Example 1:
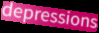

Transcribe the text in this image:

depressions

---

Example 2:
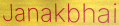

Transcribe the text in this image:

Janakbhai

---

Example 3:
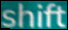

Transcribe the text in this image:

shift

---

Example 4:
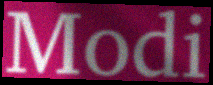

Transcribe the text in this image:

Modi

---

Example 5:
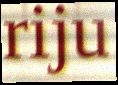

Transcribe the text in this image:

riju